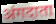
अंगदाता